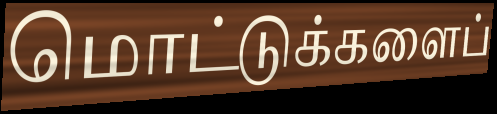
மொட்டுக்களைப்